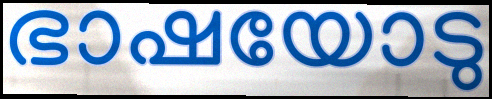
ഭാഷയോടു